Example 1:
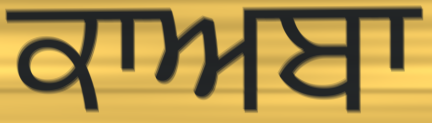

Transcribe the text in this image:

ਕਾਅਬਾ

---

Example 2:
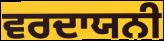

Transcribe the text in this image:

ਵਰਦਾਯਨੀ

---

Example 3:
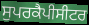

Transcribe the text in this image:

ਸੁਪਰਕੈਪੀਸੀਟਰ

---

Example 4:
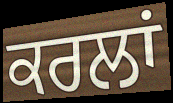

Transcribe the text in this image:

ਕਰਲਾਂ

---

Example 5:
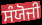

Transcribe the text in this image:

ਸੰਯੋਜੀ